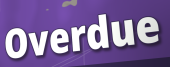
Overdue